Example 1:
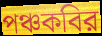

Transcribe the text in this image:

পঞ্চকবির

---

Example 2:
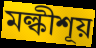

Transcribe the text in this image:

মল্কীশূয়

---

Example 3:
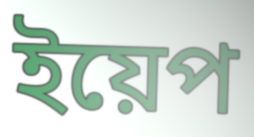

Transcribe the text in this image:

ইয়েপ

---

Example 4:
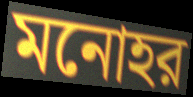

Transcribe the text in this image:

মনোহর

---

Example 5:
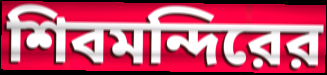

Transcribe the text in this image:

শিবমন্দিরের